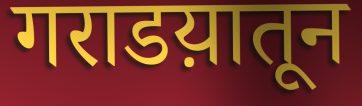
गराडय़ातून